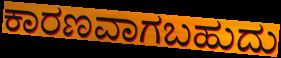
ಕಾರಣವಾಗಬಹುದು